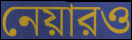
নেয়ারও